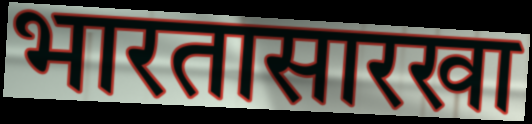
भारतासारखा